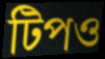
টিপও